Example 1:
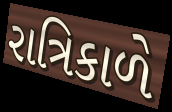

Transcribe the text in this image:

રાત્રિકાળે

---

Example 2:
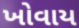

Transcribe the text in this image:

ખોવાય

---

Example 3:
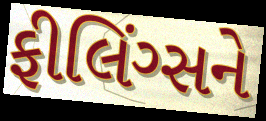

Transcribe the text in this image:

ફીલિંગ્સને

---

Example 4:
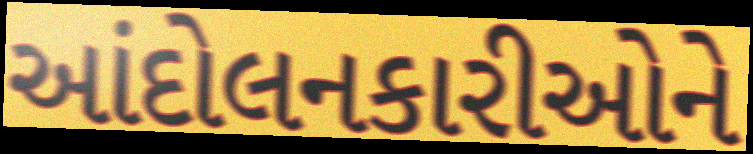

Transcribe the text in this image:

આંદોલનકારીઓને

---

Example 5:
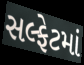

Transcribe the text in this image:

સલ્ફેટમાં